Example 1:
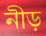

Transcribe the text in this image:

নীড়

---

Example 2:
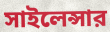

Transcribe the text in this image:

সাইলেন্সার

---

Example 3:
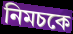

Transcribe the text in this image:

নিমচকে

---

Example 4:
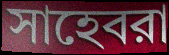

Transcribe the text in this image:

সাহেবরা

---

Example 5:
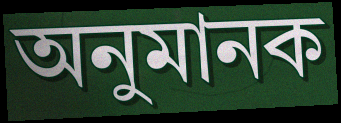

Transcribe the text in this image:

অনুমানক